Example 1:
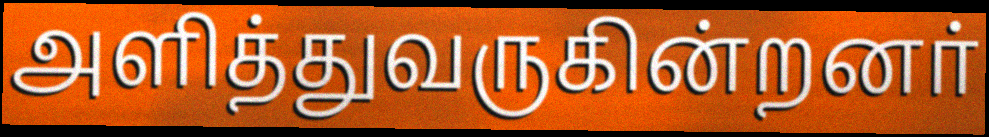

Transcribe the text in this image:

அளித்துவருகின்றனர்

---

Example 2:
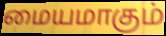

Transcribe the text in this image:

மையமாகும்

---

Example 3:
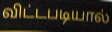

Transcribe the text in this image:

விட்டபடியால்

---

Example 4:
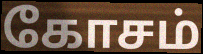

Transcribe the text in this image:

கோசம்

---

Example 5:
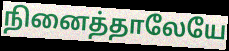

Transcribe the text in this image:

நினைத்தாலேயே